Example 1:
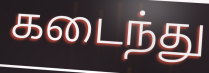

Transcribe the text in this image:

கடைந்து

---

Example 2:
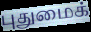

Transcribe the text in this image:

புதுமைக்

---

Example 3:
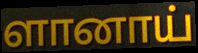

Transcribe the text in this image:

ளானாய்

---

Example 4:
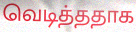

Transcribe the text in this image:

வெடித்ததாக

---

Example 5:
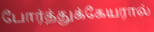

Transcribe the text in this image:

போர்த்துக்கேயரால்